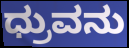
ಧ್ರುವನು